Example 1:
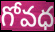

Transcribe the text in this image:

గోవధ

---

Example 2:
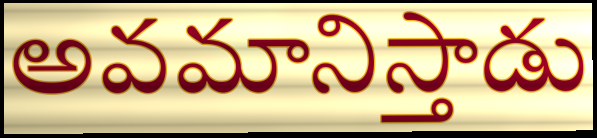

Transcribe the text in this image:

అవమానిస్తాడు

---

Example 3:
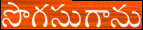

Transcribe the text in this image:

సొగసుగాను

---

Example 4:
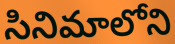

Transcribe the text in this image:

సినిమాలోని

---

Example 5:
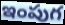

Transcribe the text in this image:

ఇంపుగ